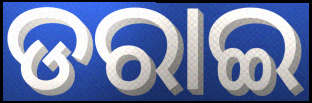
ଡରାଇ